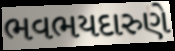
ભવભયદારુણે